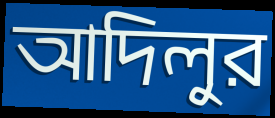
আদিলুর